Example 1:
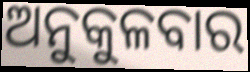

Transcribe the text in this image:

ଅନୁକୁଳବାର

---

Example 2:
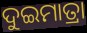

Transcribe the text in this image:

ଦୁଇମାତ୍ରା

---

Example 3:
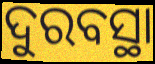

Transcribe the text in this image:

ଦୁରବସ୍ଥା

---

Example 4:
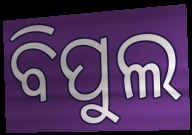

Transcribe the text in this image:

ବିପୁଲ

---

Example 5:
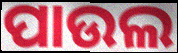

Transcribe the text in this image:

ପାଉଲ